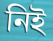
নিই